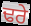
ਢਰੇ